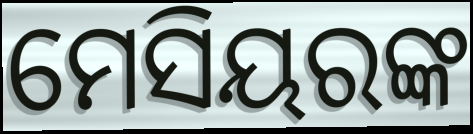
ମେସିୟରଙ୍କ